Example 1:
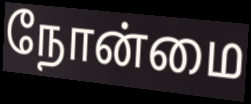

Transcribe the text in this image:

நோன்மை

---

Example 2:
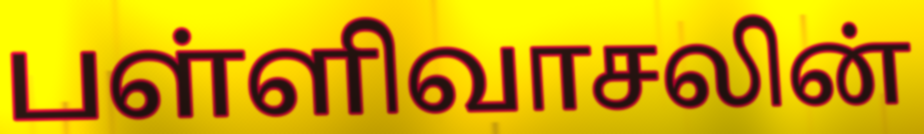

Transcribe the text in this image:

பள்ளிவாசலின்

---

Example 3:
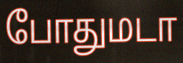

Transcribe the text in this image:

போதுமடா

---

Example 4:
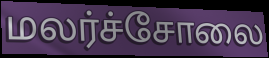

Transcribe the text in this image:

மலர்ச்சோலை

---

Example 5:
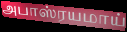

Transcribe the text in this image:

அபாஸ்ரயமாய்